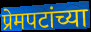
प्रेमपटांच्या